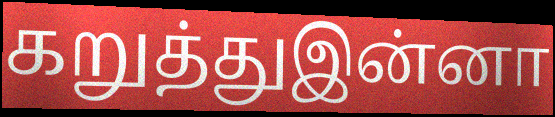
கறுத்துஇன்னா